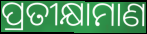
ପ୍ରତୀକ୍ଷାମାଣ